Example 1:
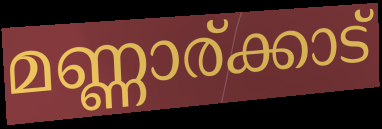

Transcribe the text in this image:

മണ്ണാര്ക്കാട്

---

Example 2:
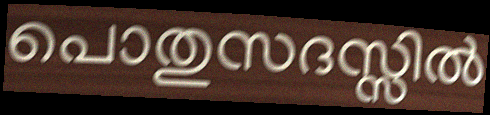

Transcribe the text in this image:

പൊതുസദസ്സിൽ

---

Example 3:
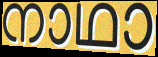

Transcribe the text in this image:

നാഥാ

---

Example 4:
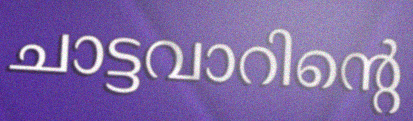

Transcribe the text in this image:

ചാട്ടവാറിന്റെ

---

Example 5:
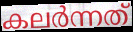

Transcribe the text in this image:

കലർന്നത്